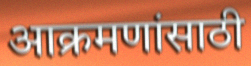
आक्रमणांसाठी